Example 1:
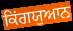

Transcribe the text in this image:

ਕਿਂਗਯੁਆਨ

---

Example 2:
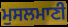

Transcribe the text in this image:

ਮੁਸਲਮਾਣੀ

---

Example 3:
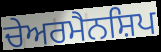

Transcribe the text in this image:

ਚੇਅਰਮੈਨਸ਼ਿਪ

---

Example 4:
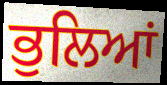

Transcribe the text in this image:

ਭੁਲਿਆਂ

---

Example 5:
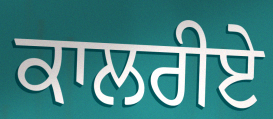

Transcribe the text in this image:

ਕਾਲਰੀਏ